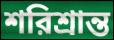
শরিশ্রান্ত